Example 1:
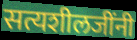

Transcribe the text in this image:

सत्यशीलजींनी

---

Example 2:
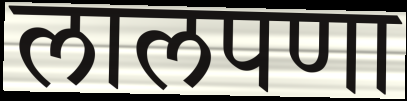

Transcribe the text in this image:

लालपणा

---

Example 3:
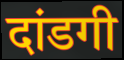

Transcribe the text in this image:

दांडगी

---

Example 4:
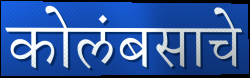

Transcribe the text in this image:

कोलंबसाचे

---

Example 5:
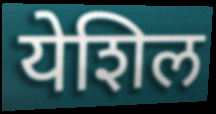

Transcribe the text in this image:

येशिल